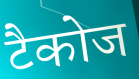
टैकोज